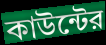
কাউন্টের